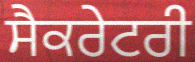
ਸੈਕਰੇਟਰੀ